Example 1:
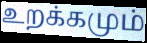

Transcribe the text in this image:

உறக்கமும்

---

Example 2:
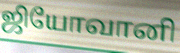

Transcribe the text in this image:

ஜியோவானி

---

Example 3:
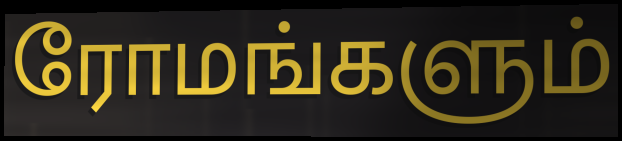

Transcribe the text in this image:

ரோமங்களும்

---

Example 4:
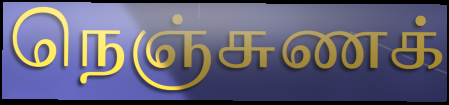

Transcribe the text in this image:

நெஞ்சுணக்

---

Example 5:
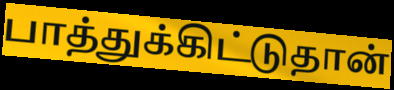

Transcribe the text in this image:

பாத்துக்கிட்டுதான்